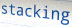
stacking